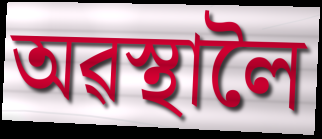
অৱস্থালৈ